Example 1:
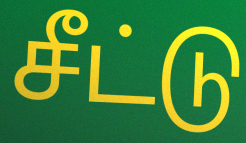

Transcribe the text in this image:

சீட்டு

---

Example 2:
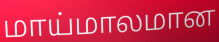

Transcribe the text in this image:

மாய்மாலமான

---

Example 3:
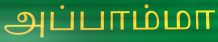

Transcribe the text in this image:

அப்பாம்மா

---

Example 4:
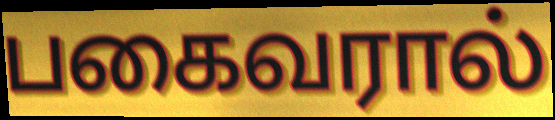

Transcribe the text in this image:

பகைவரால்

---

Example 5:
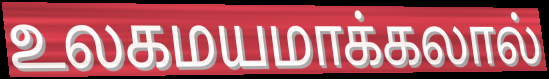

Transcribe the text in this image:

உலகமயமாக்கலால்